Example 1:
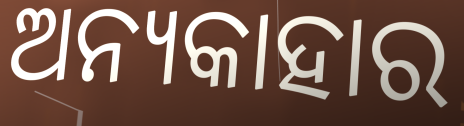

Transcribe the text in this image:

ଅନ୍ୟକାହାର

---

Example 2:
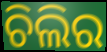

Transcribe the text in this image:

ଚିଲିର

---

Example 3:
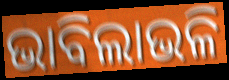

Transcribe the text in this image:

ଭାବିଲାଭଳି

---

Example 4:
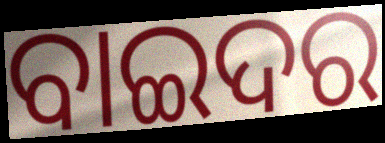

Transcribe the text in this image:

ବାଇଦର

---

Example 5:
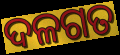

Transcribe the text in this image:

ଦଳଗତ